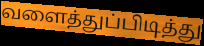
வளைத்துப்பிடித்து